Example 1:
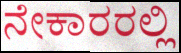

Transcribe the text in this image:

ನೇಕಾರರಲ್ಲಿ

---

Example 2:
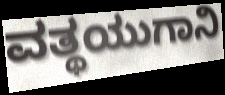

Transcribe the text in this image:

ವತ್ಥಯುಗಾನಿ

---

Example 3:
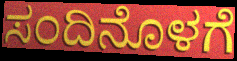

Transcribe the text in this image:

ಸಂದಿನೊಳಗೆ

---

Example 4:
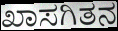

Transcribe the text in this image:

ಖಾಸಗಿತನ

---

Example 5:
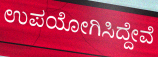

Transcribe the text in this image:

ಉಪಯೋಗಿಸಿದ್ದೇವೆ